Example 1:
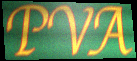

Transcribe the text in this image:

PVA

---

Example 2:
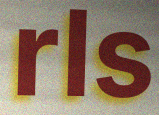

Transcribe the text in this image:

rls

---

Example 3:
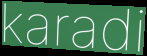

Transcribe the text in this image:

karadi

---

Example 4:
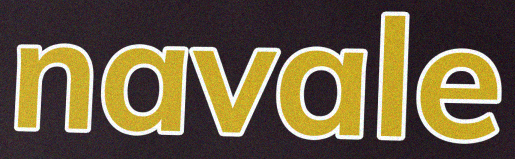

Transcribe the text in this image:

navale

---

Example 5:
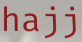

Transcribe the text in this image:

hajj